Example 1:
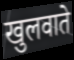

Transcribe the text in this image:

खुलवाते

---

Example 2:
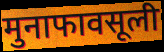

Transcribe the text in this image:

मुनाफावसूली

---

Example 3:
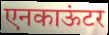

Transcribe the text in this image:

एनकाऊंटर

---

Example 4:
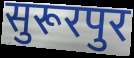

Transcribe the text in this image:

सुरूरपुर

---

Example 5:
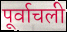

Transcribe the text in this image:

पूर्वाचली